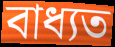
বাধ্যত